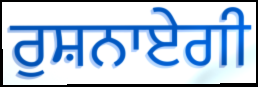
ਰੁਸ਼ਨਾਏਗੀ